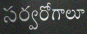
సర్వరోగాలూ